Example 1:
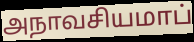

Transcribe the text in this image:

அநாவசியமாப்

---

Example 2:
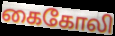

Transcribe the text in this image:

கைகோலி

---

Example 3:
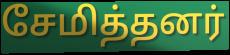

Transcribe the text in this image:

சேமித்தனர்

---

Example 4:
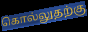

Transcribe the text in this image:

கொல்லுதற்கு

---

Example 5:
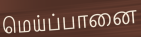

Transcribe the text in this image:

மெய்ப்பானை